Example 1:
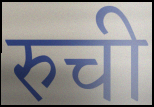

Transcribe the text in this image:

रुची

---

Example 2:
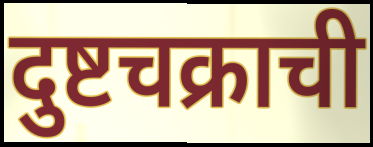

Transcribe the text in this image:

दुष्टचक्राची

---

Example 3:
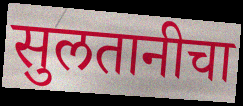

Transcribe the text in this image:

सुलतानीचा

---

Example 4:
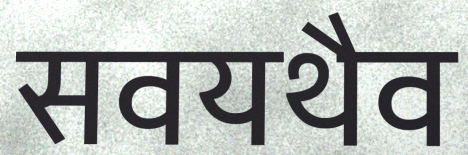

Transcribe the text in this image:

सवयथैव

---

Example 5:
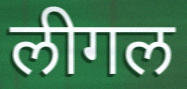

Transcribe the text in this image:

लीगल